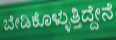
ಬೇಡಿಕೊಳ್ಳುತ್ತಿದ್ದೇನೆ